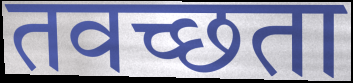
तवच्छता